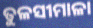
ତୁଳସୀମାଳା